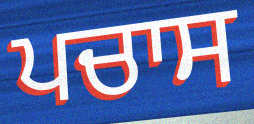
ਪਚਾਸ